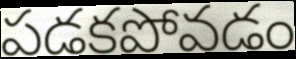
పడకపోవడం